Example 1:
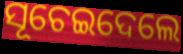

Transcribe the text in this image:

ସୂଚେଇଦେଲେ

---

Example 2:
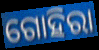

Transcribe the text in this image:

ଗୋହିରା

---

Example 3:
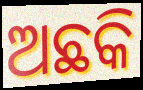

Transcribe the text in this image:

ଅଛକି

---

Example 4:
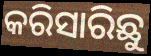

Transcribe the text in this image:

କରିସାରିଛୁ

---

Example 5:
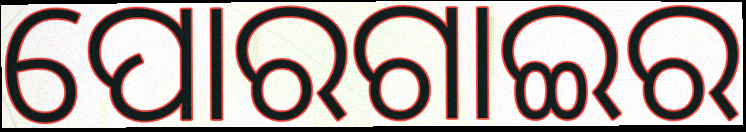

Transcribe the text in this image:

ପୋରଗାଇର